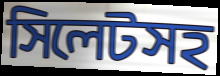
সিলেটসহ